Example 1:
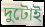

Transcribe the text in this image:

দুটোই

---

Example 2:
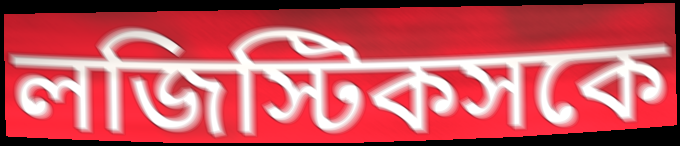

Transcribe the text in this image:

লজিস্টিকসকে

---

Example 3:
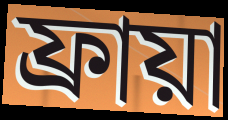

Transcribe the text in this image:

ফ্রায়া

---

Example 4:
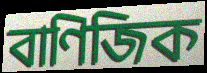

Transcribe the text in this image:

বাণিজিক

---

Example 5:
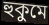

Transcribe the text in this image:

হুকুমে